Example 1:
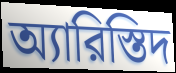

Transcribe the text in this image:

অ্যারিস্তিদ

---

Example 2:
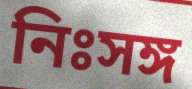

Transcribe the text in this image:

নিঃসঙ্গ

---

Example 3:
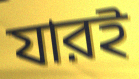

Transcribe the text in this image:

যারই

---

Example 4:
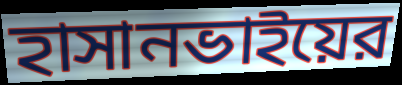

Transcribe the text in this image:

হাসানভাইয়ের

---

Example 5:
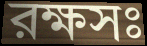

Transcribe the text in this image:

রক্ষসঃ